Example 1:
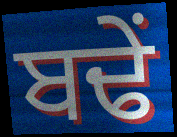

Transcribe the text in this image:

ਬਢੇਂ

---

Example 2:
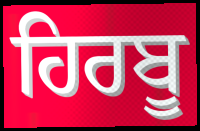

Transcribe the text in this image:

ਹਿਰਬੂ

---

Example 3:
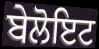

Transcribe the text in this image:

ਬੇਲੋਇਟ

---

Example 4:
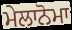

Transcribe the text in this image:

ਮੇਲਾਨੋਮਾ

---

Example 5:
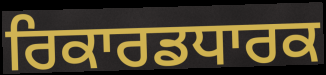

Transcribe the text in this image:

ਰਿਕਾਰਡਧਾਰਕ